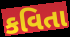
કવિતા